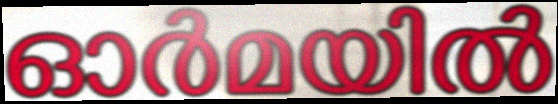
ഓർമയിൽ